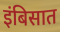
इंबिसात